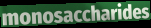
monosaccharides